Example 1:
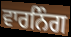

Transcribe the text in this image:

ਵਾਰਨਿੰਗ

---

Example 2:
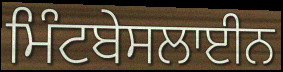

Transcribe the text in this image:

ਮਿੰਟਬੇਸਲਾਈਨ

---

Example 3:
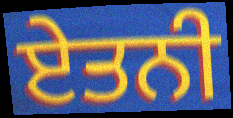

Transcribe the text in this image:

ਏਤਨੀ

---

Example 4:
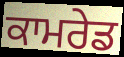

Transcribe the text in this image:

ਕਾਮਰੇਡ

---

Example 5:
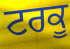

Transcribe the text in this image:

ਟਰਕੂ